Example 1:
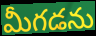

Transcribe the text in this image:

మీగడను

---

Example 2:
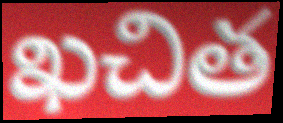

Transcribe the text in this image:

ఖచిత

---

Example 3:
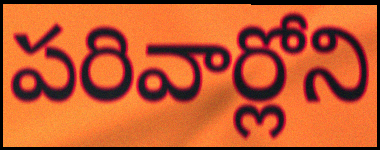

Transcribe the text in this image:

పరివార్లోని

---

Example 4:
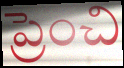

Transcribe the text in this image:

ప్రెంచి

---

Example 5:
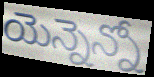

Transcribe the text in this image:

యెన్నెన్నో